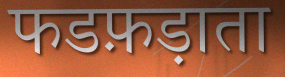
फडफ़ड़ाता